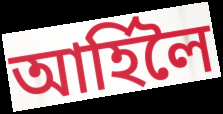
আৰ্হিলৈ